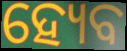
ହ୍ୟେବ